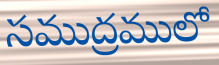
సముద్రములో